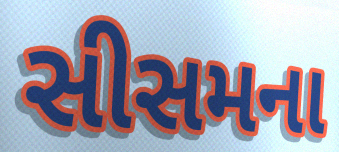
સીસમના